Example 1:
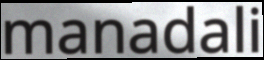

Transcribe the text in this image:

manadali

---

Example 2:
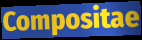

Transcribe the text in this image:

Compositae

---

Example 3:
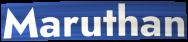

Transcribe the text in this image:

Maruthan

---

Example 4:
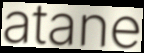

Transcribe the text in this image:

atane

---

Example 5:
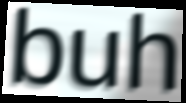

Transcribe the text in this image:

buh